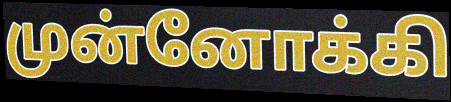
முன்னோக்கி